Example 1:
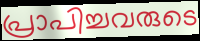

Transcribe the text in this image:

പ്രാപിച്ചവരുടെ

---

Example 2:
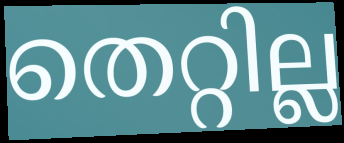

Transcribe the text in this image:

തെറ്റില്ല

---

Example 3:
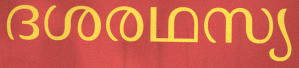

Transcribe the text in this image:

ദശരഥസ്യ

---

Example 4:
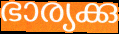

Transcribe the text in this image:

ഭാര്യക്കു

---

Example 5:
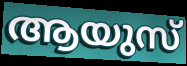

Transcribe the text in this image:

ആയുസ്